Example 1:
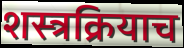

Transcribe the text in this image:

शस्त्रक्रियाच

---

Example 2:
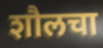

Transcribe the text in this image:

शौलचा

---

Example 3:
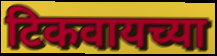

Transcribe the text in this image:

टिकवायच्या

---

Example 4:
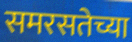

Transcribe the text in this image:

समरसतेच्या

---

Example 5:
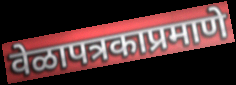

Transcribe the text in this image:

वेळापत्रकाप्रमाणे